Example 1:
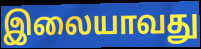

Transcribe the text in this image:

இலையாவது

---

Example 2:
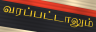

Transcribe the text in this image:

வரப்பட்டாலும்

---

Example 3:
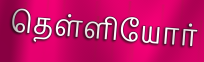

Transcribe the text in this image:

தெள்ளியோர்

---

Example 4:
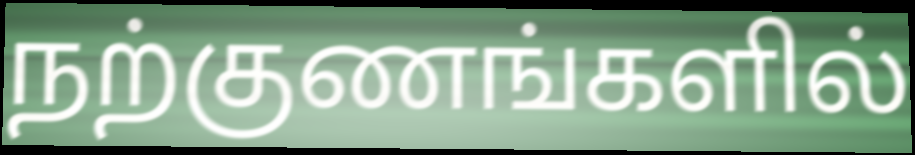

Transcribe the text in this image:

நற்குணங்களில்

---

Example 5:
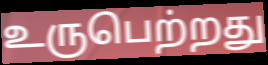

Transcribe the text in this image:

உருபெற்றது